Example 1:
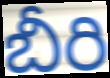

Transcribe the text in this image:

బీరి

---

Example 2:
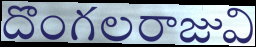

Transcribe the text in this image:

దొంగలరాజువి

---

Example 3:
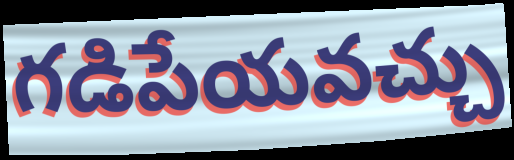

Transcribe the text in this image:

గడిపేయవచ్చు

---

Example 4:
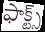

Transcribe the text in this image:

ఫాక్ట్స్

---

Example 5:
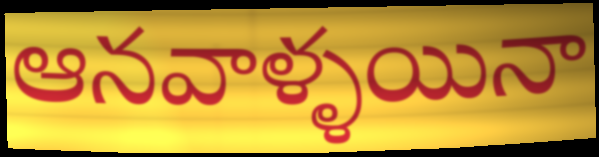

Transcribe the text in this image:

ఆనవాళ్ళయినా